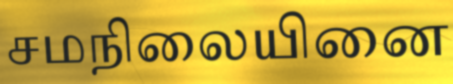
சமநிலையினை